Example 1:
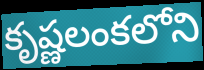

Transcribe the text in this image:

కృష్ణలంకలోని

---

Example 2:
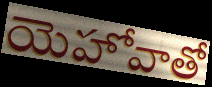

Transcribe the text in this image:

యెహోవాతో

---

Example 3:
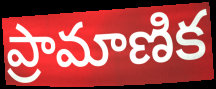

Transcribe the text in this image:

ప్రామాణిక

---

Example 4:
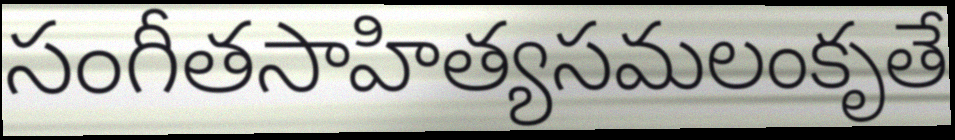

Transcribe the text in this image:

సంగీతసాహిత్యసమలంకృతే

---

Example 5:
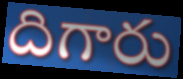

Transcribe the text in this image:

దిగారు